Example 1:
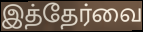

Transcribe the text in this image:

இத்தேர்வை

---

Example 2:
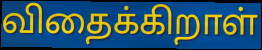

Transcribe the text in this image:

விதைக்கிறாள்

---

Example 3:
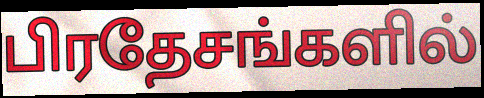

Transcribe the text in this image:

பிரதேசங்களில்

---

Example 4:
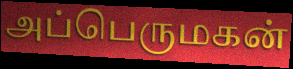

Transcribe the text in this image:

அப்பெருமகன்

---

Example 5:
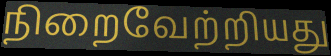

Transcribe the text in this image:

நிறைவேற்றியது